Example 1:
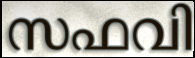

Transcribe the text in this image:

സഫവി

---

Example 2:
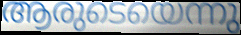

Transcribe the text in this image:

ആരുടെയെന്നു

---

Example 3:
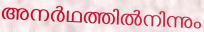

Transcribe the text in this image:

അനർഥത്തിൽനിന്നും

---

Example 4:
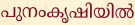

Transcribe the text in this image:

പുനംകൃഷിയിൽ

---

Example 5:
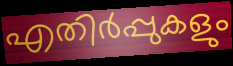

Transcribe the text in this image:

എതിർപ്പുകളും